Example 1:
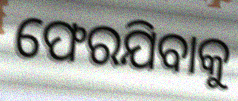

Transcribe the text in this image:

ଫେରଯିବାକୁ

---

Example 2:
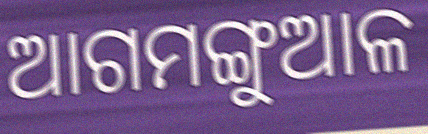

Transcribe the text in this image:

ଆଗମଙ୍ଗୁଆଳ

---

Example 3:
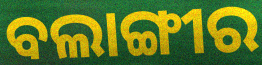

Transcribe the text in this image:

ବଲାଙ୍ଗୀର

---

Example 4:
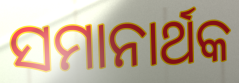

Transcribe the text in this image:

ସମାନାର୍ଥକ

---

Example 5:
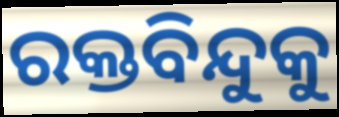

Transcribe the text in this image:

ରକ୍ତବିନ୍ଦୁକୁ